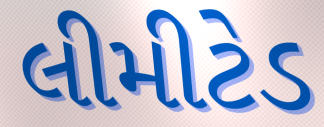
લીમીટેડ